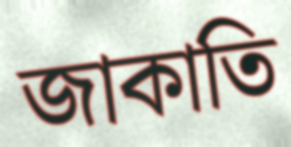
জাকাতি